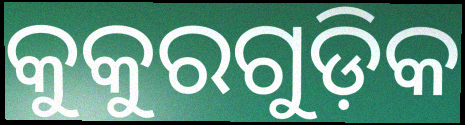
କୁକୁରଗୁଡ଼ିକ